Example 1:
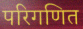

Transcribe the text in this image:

परिगणित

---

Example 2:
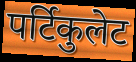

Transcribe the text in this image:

पर्टिकुलेट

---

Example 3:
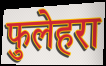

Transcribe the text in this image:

फुलेहरा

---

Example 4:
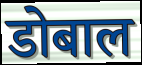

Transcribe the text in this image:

डोबाल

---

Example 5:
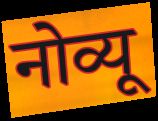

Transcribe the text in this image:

नोव्यू